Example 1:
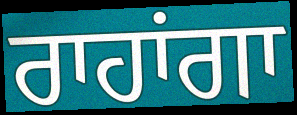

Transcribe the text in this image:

ਰਾਹਾਂਗਾ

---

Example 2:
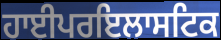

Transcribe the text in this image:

ਹਾਈਪਰਇਲਾਸਟਿਕ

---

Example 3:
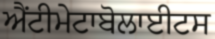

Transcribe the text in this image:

ਐਂਟੀਮੇਟਾਬੋਲਾਈਟਸ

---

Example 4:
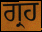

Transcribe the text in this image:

ਗ੍ਰਹ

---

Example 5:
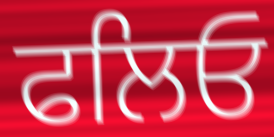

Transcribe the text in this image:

ਫਲਿਓ